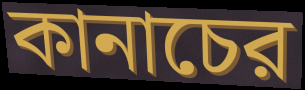
কানাচের